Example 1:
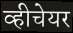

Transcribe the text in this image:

व्हीचेयर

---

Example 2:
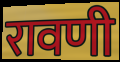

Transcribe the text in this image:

रावणी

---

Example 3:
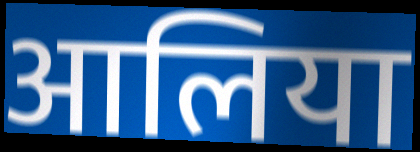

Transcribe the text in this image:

आलिया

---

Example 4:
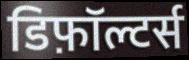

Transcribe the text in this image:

डिफ़ॉल्टर्स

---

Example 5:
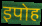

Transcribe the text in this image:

इपोह